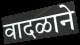
वादळाने